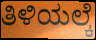
ತಿಳಿಯಲ್ಕೆ